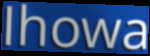
Ihowa